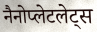
नैनोप्लेटलेट्स